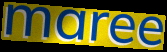
maree